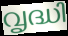
വൃദ്ധി